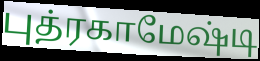
புத்ரகாமேஷ்டி